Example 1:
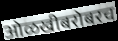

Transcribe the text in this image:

ओळखीबरोबरच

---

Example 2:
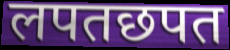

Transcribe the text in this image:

लपतछपत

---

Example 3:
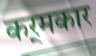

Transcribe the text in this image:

कर्मकार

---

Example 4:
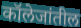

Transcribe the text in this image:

कॉलेजांतील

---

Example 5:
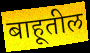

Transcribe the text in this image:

बाहूतील